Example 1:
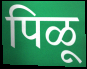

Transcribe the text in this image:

पिळू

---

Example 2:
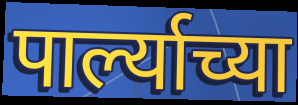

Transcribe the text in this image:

पार्ल्याच्या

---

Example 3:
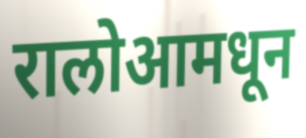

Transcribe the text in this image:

रालोआमधून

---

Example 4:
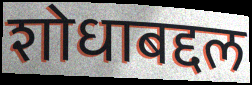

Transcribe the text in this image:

शोधाबद्दल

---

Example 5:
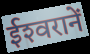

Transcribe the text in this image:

ईश्वरानें